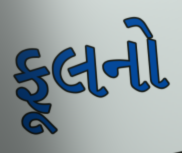
ફૂલનો